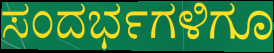
ಸಂದರ್ಭಗಳಿಗೂ